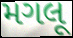
મગલૂ